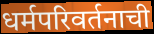
धर्मपरिवर्तनाची